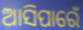
ଆସିପାରେଁ